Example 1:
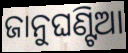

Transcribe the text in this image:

ଜାନୁଘଣ୍ଟିଆ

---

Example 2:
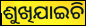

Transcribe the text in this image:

ଶୁଖିଯାଇଚି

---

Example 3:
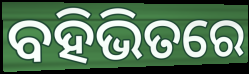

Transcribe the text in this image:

ବହିଭିତରେ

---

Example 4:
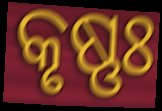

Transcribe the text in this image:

କୃଷ୍ଣଃ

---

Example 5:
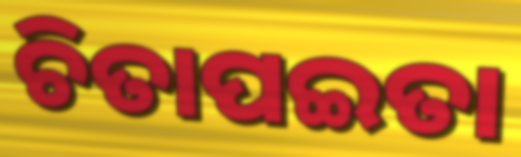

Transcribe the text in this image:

ଚିତାପଇତା